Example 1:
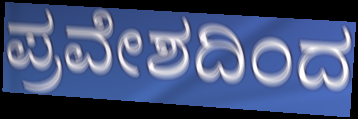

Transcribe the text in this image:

ಪ್ರವೇಶದಿಂದ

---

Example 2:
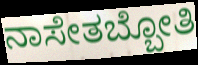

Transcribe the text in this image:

ನಾಸೇತಬ್ಬೋತಿ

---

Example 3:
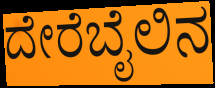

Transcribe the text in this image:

ದೇರೆಬೈಲಿನ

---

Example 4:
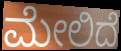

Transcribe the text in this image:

ಮೇಲಿದೆ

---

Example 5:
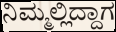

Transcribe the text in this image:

ನಿಮ್ಮಲ್ಲಿದ್ದಾಗ